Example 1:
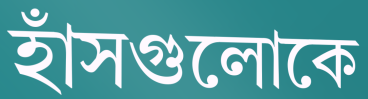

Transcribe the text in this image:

হাঁসগুলোকে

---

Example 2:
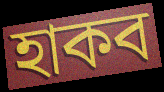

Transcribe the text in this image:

হাকব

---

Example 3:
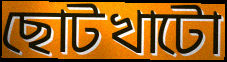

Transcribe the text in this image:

ছোটখাটো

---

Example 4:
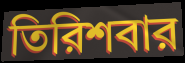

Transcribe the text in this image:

তিরিশবার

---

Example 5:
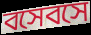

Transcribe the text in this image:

বসেবসে